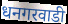
धनगरवाडी